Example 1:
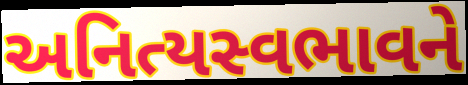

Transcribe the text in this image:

અનિત્યસ્વભાવને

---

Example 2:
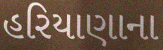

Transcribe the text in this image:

હરિયાણાના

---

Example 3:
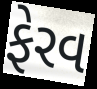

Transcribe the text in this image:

ફેરવ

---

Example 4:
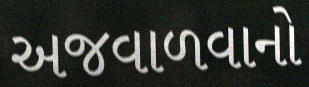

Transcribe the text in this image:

અજવાળવાનો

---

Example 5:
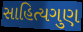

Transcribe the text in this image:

સાહિત્યગુણ